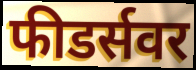
फीडर्सवर